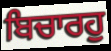
ਬਿਚਾਰਹੁ